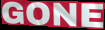
GONE